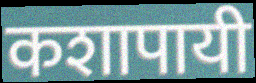
कशापायी